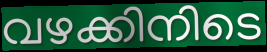
വഴക്കിനിടെ